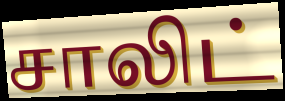
சாலிட்